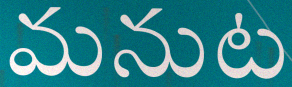
మనుట